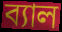
ব্যাল